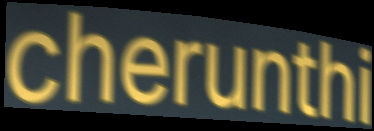
cherunthi